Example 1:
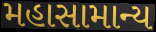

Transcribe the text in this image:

મહાસામાન્ય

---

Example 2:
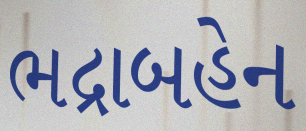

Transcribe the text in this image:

ભદ્રાબહેન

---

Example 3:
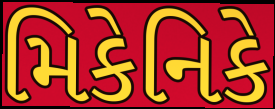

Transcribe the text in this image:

મિકેનિકે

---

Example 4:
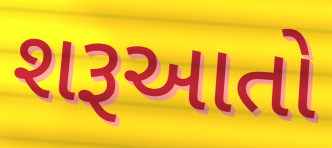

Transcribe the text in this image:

શરૂઆતો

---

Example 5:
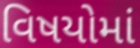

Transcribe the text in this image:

વિષયોમાં